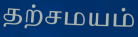
தற்சமயம்